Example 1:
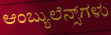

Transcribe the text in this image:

ಆಂಬ್ಯುಲೆನ್ಸ್‌ಗಳು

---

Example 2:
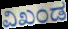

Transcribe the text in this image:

ವಿಖಂಡ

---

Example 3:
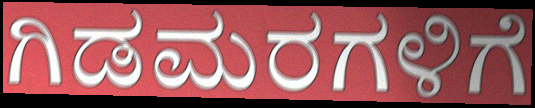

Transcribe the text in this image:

ಗಿಡಮರಗಳಿಗೆ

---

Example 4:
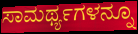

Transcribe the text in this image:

ಸಾಮರ್ಥ್ಯಗಳನ್ನೂ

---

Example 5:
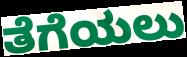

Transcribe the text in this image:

ತೆಗೆಯಲು